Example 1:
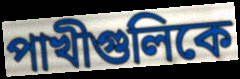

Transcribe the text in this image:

পাখীগুলিকে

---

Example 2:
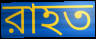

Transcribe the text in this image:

রাহত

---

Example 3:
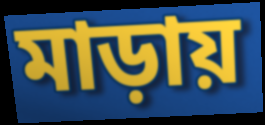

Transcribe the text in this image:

মাড়ায়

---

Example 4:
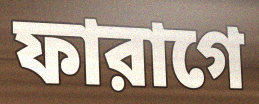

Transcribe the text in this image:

ফারাগে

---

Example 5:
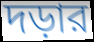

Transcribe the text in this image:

দড়ার